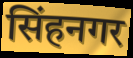
सिंहनगर